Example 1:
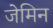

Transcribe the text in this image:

जेमिन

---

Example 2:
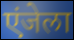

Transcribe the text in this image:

एंजेला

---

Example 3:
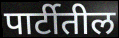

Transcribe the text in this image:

पार्टीतील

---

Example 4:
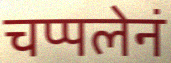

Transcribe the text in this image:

चप्पलेनं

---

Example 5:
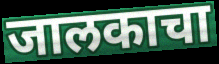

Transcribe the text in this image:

जालकाचा